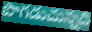
పొగడుచున్నది